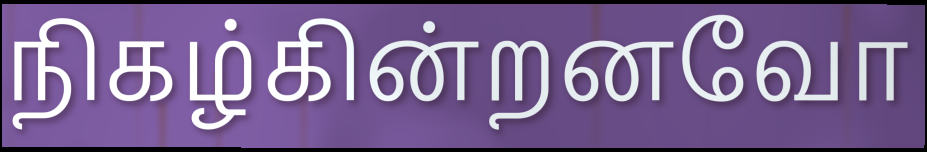
நிகழ்கின்றனவோ